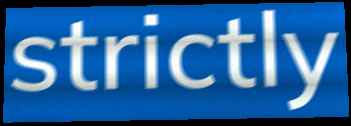
strictly